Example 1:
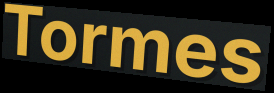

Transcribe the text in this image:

Tormes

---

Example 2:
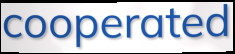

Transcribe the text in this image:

cooperated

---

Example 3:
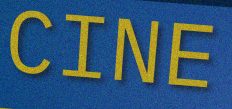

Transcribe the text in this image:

CINE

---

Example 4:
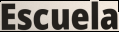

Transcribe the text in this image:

Escuela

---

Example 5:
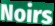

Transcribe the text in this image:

Noirs